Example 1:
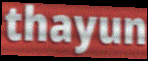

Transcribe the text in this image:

thayun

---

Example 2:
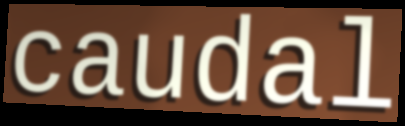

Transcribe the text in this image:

caudal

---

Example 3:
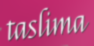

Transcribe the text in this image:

taslima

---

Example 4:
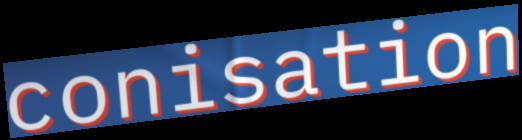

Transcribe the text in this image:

conisation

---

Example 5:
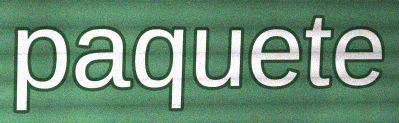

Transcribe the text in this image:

paquete